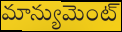
మాన్యుమెంట్